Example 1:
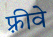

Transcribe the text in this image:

फ़्रीवे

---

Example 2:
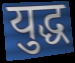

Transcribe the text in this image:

युद्ध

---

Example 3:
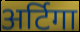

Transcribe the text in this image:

अर्टिगा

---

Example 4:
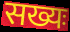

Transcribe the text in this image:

सख्यः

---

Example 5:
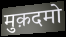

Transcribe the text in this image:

मुक़दमो